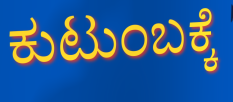
ಕುಟುಂಬಕ್ಕೆ